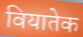
वियातेक